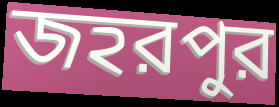
জহরপুর